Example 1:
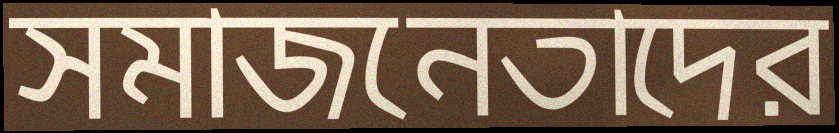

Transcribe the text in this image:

সমাজনেতাদের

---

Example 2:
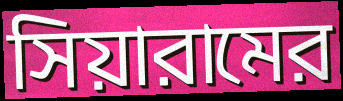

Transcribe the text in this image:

সিয়ারামের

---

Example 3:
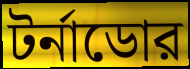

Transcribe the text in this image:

টর্নাডোর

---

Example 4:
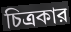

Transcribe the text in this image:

চিত্রকার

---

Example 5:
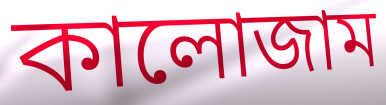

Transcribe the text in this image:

কালোজাম